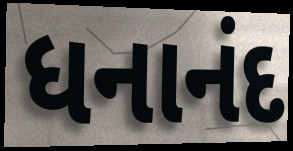
ધનાનંદ